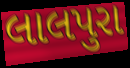
લાલપુરા